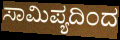
ಸಾಮಿಪ್ಯದಿಂದ